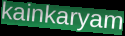
kainkaryam